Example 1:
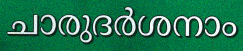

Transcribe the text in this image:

ചാരുദർശനാം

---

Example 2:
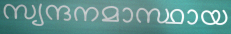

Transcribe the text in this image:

സ്യന്ദനമാസ്ഥായ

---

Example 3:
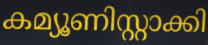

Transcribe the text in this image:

കമ്യൂണിസ്റ്റാക്കി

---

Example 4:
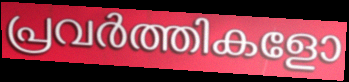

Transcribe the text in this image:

പ്രവർത്തികളോ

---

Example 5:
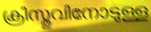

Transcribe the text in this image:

ക്രിസ്തുവിനോടുള്ള